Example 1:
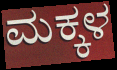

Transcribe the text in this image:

ಮಕ್ಕಳ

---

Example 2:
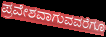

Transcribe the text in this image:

ಪ್ರವೇಶವಾಗುವವರೆಗೂ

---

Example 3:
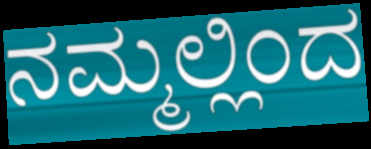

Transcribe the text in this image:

ನಮ್ಮಲ್ಲಿಂದ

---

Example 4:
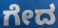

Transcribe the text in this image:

ಗೇದ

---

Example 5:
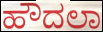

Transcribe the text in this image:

ಹೌದಲಾ